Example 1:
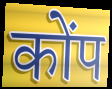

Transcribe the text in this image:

कोंप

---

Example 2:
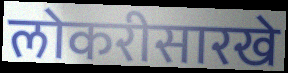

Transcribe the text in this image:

लोकरीसारखे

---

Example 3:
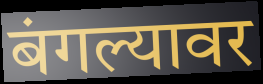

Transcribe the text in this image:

बंगल्यावर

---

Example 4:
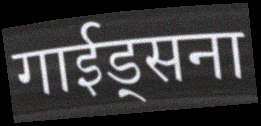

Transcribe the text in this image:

गाईड्सना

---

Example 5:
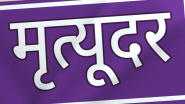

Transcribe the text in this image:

मृत्यूदर